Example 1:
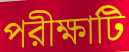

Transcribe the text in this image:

পরীক্ষাটি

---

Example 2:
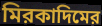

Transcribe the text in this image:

মিরকাদিমের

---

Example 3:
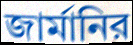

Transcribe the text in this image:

জার্মানির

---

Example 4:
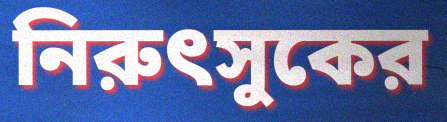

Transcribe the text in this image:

নিরুৎসুকের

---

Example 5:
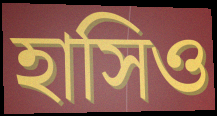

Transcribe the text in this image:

হাসিও